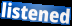
listened